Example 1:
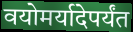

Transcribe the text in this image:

वयोमर्यादेपर्यंत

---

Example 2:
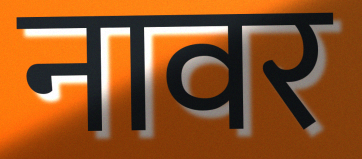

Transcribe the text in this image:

नावर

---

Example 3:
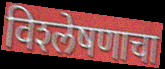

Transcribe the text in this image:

विश्‍लेषणाचा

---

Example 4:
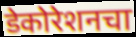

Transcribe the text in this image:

डेकोरेशनचा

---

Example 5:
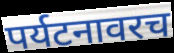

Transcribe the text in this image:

पर्यटनावरच